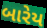
બારેય